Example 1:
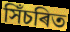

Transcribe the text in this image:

সিঁচৰিত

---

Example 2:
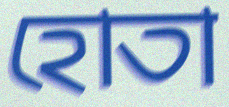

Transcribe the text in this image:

হোতা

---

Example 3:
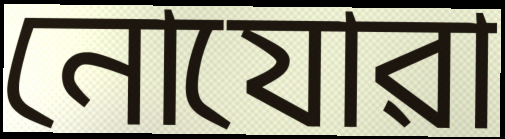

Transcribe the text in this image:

নোযোৱা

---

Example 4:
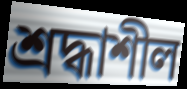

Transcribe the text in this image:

শ্ৰদ্ধাশীল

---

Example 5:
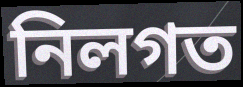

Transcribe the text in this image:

নিলগত